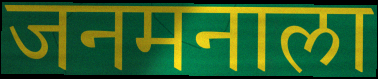
जनमनाला